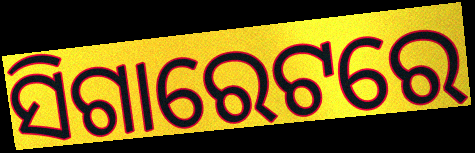
ସିଗାରେଟରେ